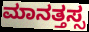
ಮಾನತ್ತಸ್ಸ